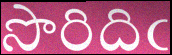
సొరిదిఁ